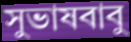
সুভাষবাবু